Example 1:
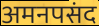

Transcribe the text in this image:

अमनपसंद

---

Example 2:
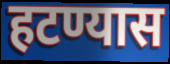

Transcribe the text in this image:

हटण्यास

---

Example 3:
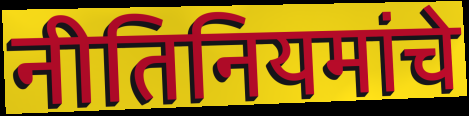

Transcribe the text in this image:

नीतिनियमांचे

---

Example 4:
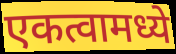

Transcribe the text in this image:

एकत्वामध्ये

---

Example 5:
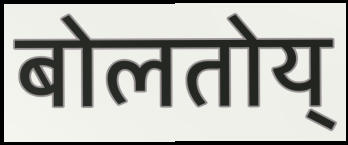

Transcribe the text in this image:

बोलतोय्